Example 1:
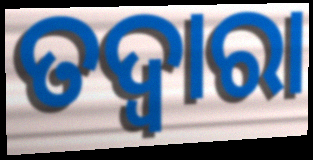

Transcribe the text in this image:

ତଦ୍ୱାରା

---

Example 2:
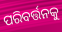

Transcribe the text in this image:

ପରିବର୍ତ୍ତନକୁ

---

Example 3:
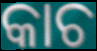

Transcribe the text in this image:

କାଚ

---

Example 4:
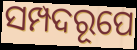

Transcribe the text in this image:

ସମ୍ପଦରୂପେ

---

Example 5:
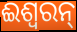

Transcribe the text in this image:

ଈଶ୍ୱରନ୍